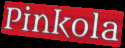
Pinkola